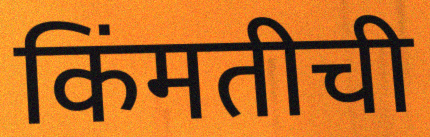
किंमतीची